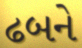
ઢબને